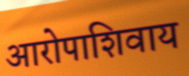
आरोपाशिवाय